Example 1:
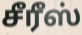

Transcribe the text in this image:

சீரீஸ்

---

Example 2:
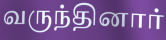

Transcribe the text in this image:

வருந்தினார்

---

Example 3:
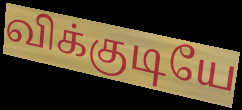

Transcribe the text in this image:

விக்குடியே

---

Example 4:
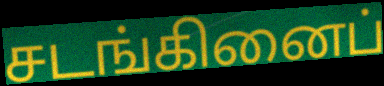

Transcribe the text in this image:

சடங்கினைப்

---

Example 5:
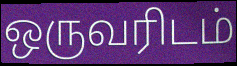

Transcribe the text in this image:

ஒருவரிடம்